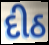
દીઠ